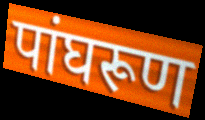
पांघरूण